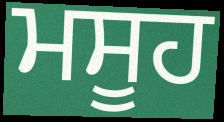
ਮਸੂਹ